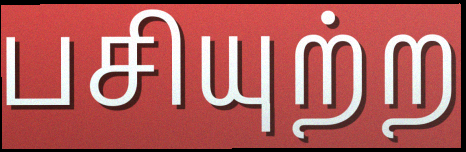
பசியுற்ற